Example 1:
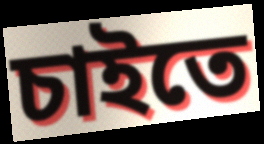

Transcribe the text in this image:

চাইতে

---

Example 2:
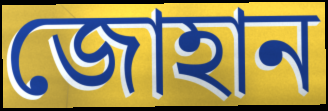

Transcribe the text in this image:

জোহান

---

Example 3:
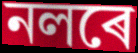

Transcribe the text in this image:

নলৰে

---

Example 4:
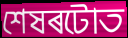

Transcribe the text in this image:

শেষৰটোত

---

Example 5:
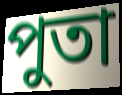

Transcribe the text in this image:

পুতা